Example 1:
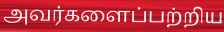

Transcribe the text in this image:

அவர்களைப்பற்றிய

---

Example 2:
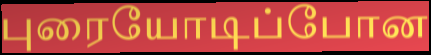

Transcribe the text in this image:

புரையோடிப்போன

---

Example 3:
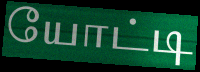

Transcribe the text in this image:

யோட்டி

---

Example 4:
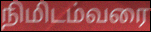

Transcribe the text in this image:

நிமிடம்வரை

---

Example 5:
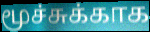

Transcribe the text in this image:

மூச்சுக்காக